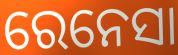
ରେନେସା